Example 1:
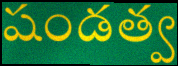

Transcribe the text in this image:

షండత్వ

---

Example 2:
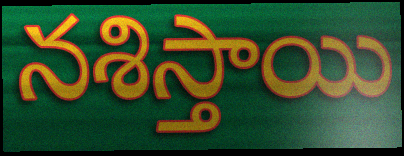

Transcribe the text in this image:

నశిస్తాయి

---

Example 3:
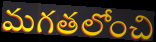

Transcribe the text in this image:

మగతలోంచి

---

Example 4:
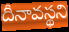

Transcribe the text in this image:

దీనావస్థని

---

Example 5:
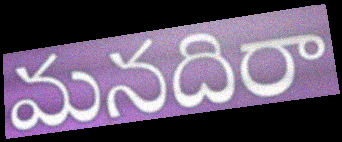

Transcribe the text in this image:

మనదిరా